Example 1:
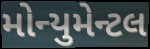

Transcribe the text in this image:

મોન્યુમેન્ટલ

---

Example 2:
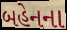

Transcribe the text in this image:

બહેનના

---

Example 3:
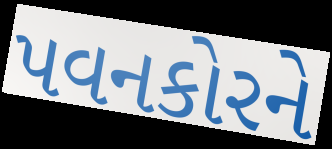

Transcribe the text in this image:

પવનકોરને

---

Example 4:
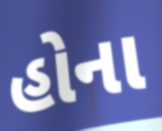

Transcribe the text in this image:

હોના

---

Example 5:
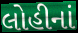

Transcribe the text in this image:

લોહીનાં